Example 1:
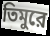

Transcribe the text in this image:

তিমুরে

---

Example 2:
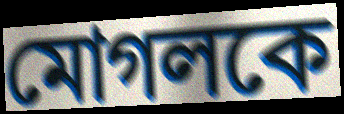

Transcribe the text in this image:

মোগলকে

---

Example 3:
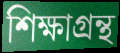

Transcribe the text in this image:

শিক্ষাগ্রন্থ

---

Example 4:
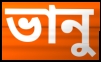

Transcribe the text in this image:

ভানু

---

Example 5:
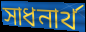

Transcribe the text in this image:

সাধনার্থ